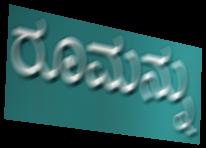
ರೂಮನ್ನು